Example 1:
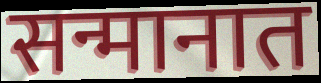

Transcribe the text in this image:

सन्मानात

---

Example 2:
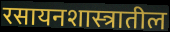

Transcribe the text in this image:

रसायनशास्त्रातील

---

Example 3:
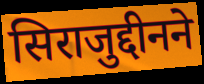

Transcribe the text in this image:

सिराजुद्दीनने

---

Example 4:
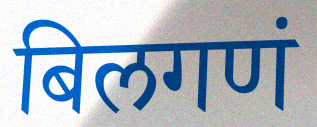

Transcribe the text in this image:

बिलगणं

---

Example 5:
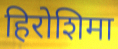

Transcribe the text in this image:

हिरोशिमा